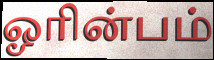
ஓரின்பம்